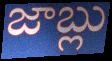
జాబ్లు